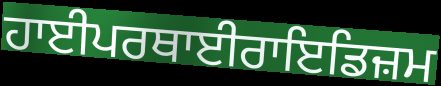
ਹਾਈਪਰਥਾਈਰਾਇਡਿਜ਼ਮ